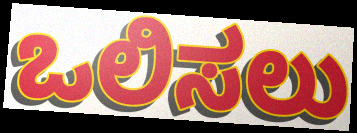
ಒಲಿಸಲು